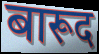
बारूद